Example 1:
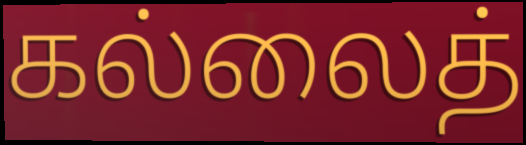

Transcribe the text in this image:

கல்லைத்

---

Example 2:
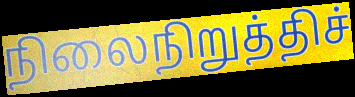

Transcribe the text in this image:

நிலைநிறுத்திச்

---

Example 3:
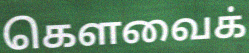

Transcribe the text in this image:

கௌவைக்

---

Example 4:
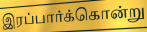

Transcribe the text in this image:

இரப்பார்க்கொன்று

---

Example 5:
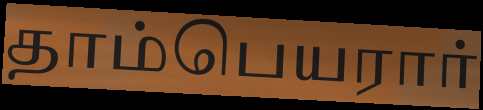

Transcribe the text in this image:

தாம்பெயரார்